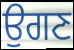
ਉਗਣ